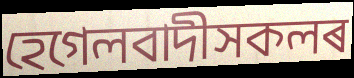
হেগেলবাদীসকলৰ